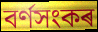
বৰ্ণসংকৰ